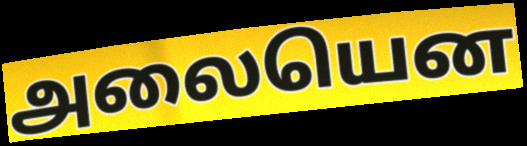
அலையென